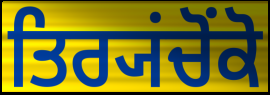
ਤਿਰ੍ਯਂਚੋਂਕੋ